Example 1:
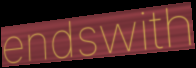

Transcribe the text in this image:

endswith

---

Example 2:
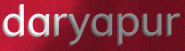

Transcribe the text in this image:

daryapur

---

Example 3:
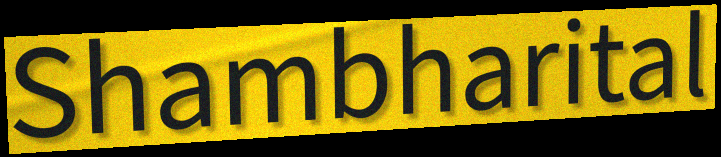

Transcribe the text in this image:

Shambharital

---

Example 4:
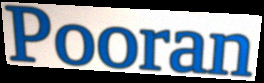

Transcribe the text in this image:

Pooran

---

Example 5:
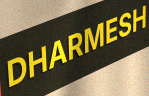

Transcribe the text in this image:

DHARMESH